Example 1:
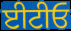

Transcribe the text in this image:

ਈਟੀਓ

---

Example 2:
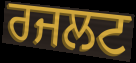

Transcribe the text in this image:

ਰਜਲਟ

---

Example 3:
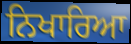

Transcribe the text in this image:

ਨਿਖਾਰਿਆ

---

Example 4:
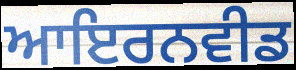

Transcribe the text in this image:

ਆਇਰਨਵੀਡ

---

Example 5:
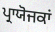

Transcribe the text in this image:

ਪ੍ਰਾਯੋਜਕਾਂ